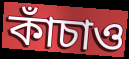
কাঁচাও